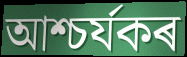
আশ্চৰ্যকৰ